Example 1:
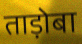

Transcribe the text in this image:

ताड़ोबा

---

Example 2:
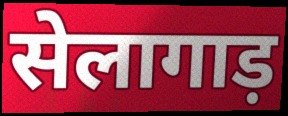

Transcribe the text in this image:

सेलागाड़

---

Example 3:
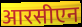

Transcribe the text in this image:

आरसीएन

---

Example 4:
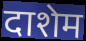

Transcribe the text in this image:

दाशेम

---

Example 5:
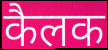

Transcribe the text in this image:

कैलक